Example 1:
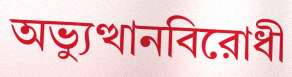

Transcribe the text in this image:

অভ্যুত্থানবিরোধী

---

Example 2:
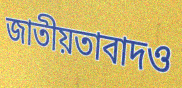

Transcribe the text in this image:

জাতীয়তাবাদও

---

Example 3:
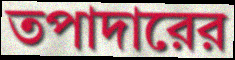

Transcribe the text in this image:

তপাদারের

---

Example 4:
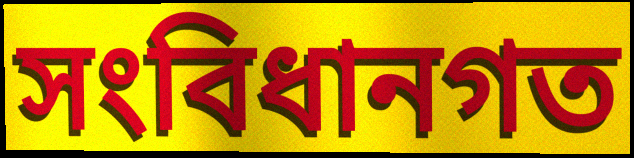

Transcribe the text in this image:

সংবিধানগত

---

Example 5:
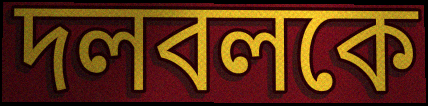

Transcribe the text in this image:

দলবলকে